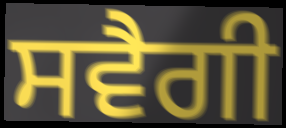
ਸਵੈਗੀ